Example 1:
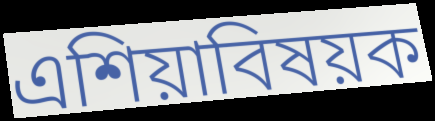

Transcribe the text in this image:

এশিয়াবিষয়ক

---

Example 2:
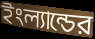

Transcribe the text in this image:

ইংল্যান্ডের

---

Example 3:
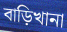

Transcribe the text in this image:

বাড়িখানা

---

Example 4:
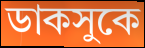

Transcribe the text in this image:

ডাকসুকে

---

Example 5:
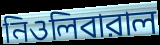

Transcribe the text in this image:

নিওলিবারাল